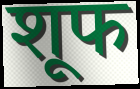
शूफ